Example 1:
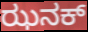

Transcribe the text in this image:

ಝನಕ್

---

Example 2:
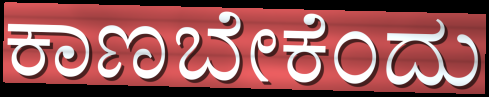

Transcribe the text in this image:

ಕಾಣಬೇಕೆಂದು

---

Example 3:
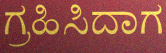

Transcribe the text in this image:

ಗ್ರಹಿಸಿದಾಗ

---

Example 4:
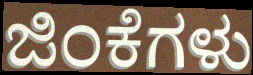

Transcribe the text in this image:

ಜಿಂಕೆಗಳು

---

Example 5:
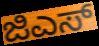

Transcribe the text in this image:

ಜಿಎಸ್